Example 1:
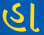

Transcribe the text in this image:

હા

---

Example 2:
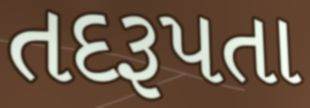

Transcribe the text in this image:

તદરૂપતા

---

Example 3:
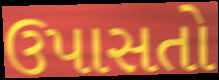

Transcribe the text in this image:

ઉપાસતો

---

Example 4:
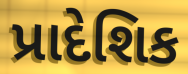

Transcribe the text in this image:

પ્રાદેશિક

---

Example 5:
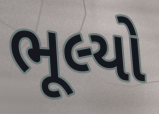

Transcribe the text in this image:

ભૂલ્યો